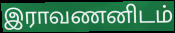
இராவணனிடம்